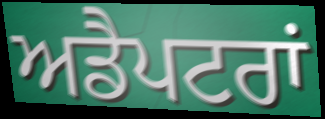
ਅਡੈਪਟਰਾਂ